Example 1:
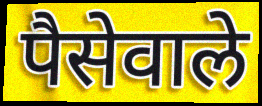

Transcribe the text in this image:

पैसेवाले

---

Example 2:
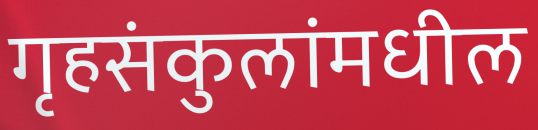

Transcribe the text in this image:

गृहसंकुलांमधील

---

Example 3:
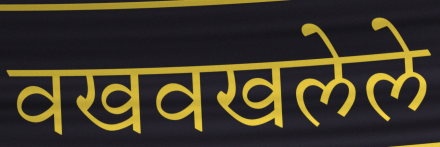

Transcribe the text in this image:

वखवखलेले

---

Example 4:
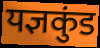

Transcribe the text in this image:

यज्ञकुंड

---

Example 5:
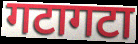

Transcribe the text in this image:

गटागटा